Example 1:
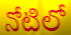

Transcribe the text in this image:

నోటిలో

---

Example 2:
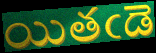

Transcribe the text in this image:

యితఁడె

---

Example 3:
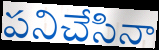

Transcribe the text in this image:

పనిచేసినా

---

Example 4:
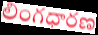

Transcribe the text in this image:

లింగధారణ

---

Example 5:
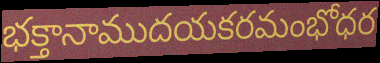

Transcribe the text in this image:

భక్తానాముదయకరమంభోధర